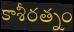
కాశీరత్నం